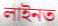
লাইনত